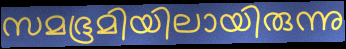
സമഭൂമിയിലായിരുന്നു